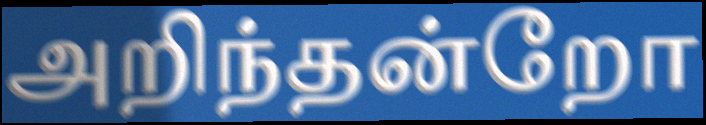
அறிந்தன்றோ